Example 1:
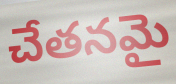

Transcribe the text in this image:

చేతనమై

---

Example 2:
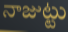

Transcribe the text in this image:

నాజుట్టు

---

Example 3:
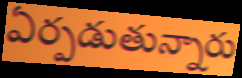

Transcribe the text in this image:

ఏర్పడుతున్నారు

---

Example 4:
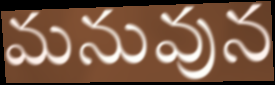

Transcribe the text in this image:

మనువున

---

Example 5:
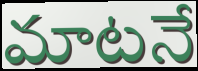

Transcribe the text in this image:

మాటనే